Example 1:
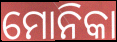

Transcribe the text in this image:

ମୋନିକା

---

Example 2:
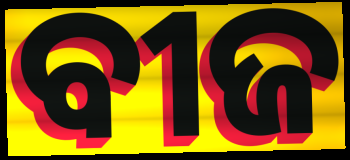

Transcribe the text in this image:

ବୀଜ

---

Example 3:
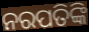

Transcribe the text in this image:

ନରପତିଙ୍କି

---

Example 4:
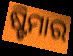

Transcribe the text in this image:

ଷ୍ଟିମାର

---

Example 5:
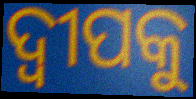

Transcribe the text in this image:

ଦ୍ୱୀପକୁ